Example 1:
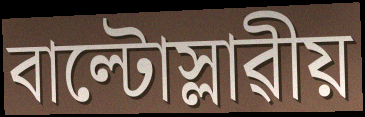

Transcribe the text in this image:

বাল্টোস্লাৱীয়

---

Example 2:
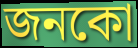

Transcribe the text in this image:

জনকো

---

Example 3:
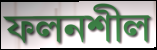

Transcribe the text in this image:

ফলনশীল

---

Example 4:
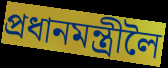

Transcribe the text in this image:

প্ৰধানমন্ত্ৰীলৈ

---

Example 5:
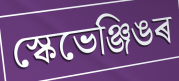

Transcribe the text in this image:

স্কেভেঞ্জিঙৰ